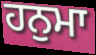
ਹਨੁਮਾ